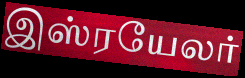
இஸ்ரயேலர்